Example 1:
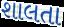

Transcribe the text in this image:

શાલતા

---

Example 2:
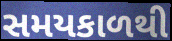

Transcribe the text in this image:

સમયકાળથી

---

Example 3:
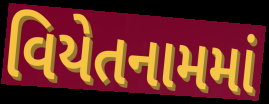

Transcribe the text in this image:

વિયેતનામમાં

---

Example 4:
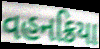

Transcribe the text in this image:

વહનક્રિયા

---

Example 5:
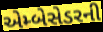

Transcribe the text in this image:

એમ્બેસેડરની